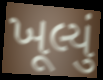
ખૂલ્યું